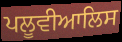
ਪਲੂਵੀਆਲਿਸ